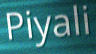
Piyali